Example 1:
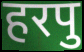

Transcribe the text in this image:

हरपु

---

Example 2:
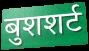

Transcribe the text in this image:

बुशशर्ट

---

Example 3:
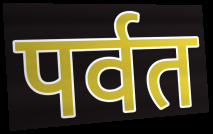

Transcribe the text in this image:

पर्वत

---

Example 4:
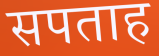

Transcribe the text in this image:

सपताह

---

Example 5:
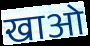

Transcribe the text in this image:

खाओ